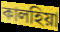
কালহিয়া